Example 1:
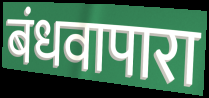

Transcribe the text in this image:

बंधवापारा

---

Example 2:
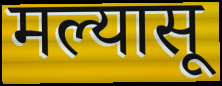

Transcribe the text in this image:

मल्यासू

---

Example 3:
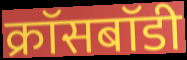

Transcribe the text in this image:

क्रॉसबॉडी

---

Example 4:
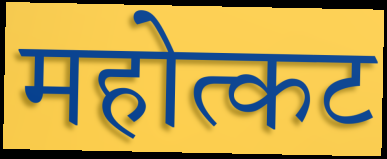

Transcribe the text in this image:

महोत्कट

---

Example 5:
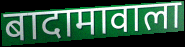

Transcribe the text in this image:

बादामावाला